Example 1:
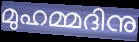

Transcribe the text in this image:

മുഹമ്മദിനു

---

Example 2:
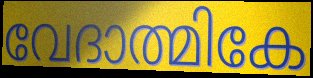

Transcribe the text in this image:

വേദാത്മികേ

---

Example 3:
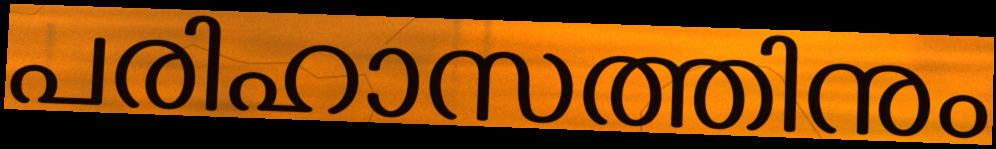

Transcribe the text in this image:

പരിഹാസത്തിനും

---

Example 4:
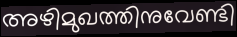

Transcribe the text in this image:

അഴിമുഖത്തിനുവേണ്ടി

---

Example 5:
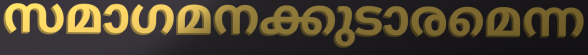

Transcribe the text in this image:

സമാഗമനക്കുടാരമെന്ന